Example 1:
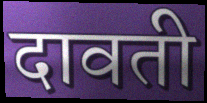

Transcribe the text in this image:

दावती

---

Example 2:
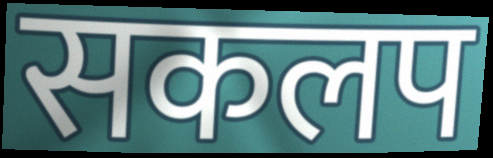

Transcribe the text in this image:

सकलप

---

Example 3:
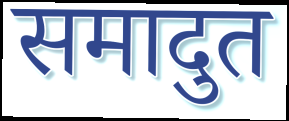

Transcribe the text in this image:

समादुत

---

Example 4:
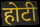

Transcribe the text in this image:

होटी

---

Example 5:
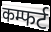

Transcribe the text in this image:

कम्फर्ट